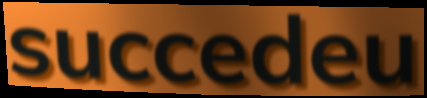
succedeu